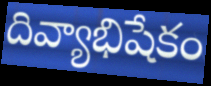
దివ్యాభిషేకం